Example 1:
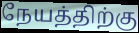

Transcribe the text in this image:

நேயத்திற்கு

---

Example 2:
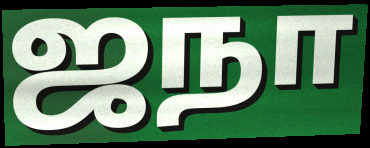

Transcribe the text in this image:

ஜநா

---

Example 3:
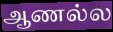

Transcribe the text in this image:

ஆணல்ல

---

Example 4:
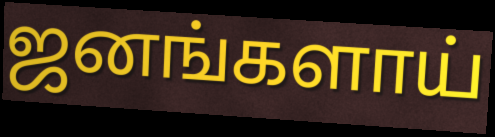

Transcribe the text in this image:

ஜனங்களாய்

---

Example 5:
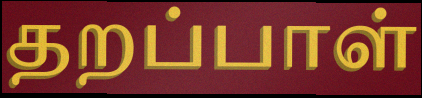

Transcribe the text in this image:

தறப்பாள்